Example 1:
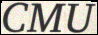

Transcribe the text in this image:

CMU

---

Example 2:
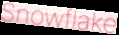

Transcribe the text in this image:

Snowflake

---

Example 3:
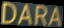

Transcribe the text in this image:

DARA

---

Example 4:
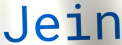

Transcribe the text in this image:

Jein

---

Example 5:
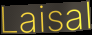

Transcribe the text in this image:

Laisal